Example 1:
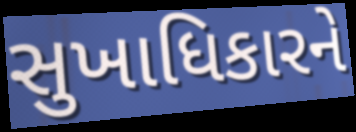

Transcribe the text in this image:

સુખાધિકારને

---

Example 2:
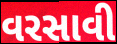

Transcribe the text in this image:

વરસાવી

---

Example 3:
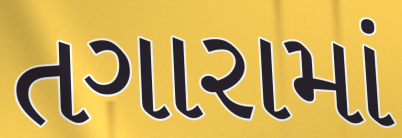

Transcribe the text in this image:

તગારામાં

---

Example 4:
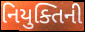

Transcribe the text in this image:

નિયુક્તિની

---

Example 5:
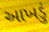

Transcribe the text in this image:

આખડું